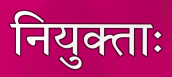
नियुक्ताः